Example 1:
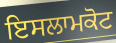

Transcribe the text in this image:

ਇਸਲਾਮਕੋਟ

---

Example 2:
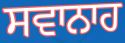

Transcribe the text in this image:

ਸਵਾਨਾਹ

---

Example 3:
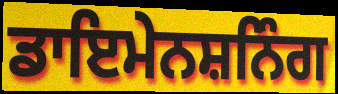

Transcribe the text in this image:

ਡਾਇਮੇਨਸ਼ਨਿੰਗ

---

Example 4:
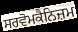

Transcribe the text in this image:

ਸਰਵੋਮਕੈਨਿਜ਼ਮ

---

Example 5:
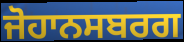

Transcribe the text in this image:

ਜੋਹਾਨਸਬਰਗ